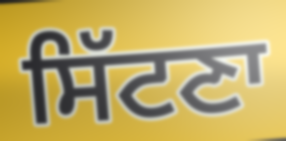
ਸਿੱਟਣਾ